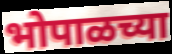
भोपाळच्या